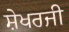
ਸ਼ੇਖਰਜੀ